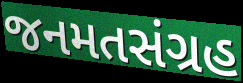
જનમતસંગ્રહ